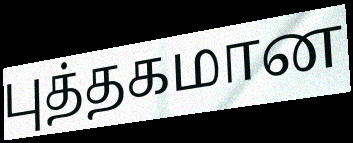
புத்தகமான